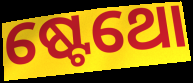
ଷ୍ଟେଥୋ